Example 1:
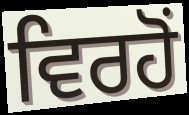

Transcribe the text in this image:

ਵਿਰਹੋਂ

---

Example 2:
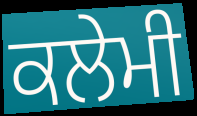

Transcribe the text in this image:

ਕਲੇਮੀ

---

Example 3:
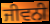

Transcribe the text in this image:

ਜੀਵਨੀ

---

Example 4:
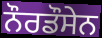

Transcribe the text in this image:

ਨੌਰਡੌਸੇਨ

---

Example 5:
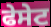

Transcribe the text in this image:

ਫੇਸੇਟ